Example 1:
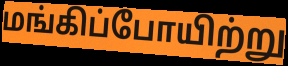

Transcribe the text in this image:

மங்கிப்போயிற்று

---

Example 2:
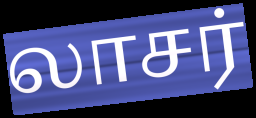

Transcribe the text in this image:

லாசர்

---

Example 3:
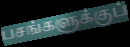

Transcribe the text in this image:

பசங்களுக்குப்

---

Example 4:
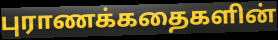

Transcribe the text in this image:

புராணக்கதைகளின்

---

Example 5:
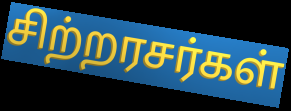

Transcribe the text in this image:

சிற்றரசர்கள்